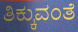
ತಿಕ್ಕುವಂತೆ